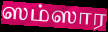
ஸம்ஸார